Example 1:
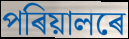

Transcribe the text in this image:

পৰিয়ালৰে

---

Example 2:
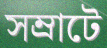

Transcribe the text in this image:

সম্ৰাটে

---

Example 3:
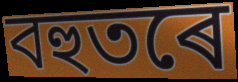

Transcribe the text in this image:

বহুতৰে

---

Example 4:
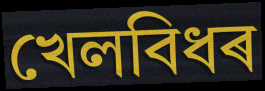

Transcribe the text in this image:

খেলবিধৰ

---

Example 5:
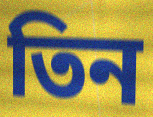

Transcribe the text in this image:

তিন